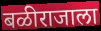
बळीराजाला